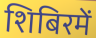
शिबिरमें